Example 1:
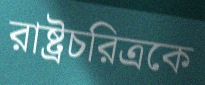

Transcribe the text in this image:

রাষ্ট্রচরিত্রকে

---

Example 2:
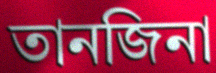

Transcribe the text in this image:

তানজিনা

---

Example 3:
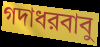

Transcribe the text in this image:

গদাধরবাবু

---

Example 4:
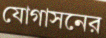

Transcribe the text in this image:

যোগাসনের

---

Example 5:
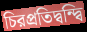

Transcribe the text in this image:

চিরপ্রতিদ্বন্দ্বি